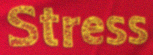
Stress